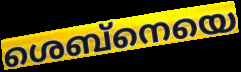
ശെബ്നെയെ